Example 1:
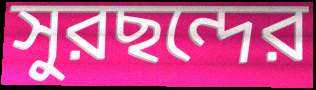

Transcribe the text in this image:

সুরছন্দের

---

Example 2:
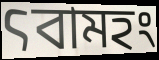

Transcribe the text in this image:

ৎবামহং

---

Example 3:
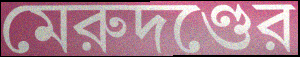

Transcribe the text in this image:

মেরুদণ্ডের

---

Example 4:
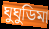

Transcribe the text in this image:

ঘুঘুডিমা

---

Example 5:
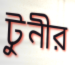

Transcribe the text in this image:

টুনীর